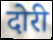
दोरी